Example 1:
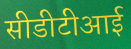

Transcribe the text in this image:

सीडीटीआई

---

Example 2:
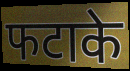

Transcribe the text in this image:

फटाके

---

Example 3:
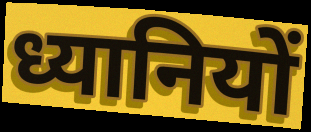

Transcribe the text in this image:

ध्यानियों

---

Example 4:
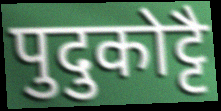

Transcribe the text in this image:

पुदुकोट्टै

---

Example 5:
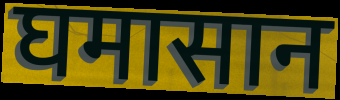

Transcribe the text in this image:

घमासान